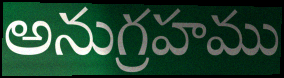
అనుగ్రహము